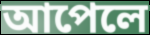
আপেলে